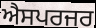
ਐਸਪਰਜਰ